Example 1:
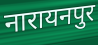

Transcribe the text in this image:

नारायनपुर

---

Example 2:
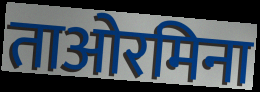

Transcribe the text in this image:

ताओरमिना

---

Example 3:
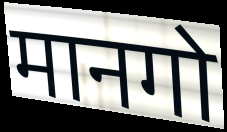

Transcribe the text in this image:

मानगो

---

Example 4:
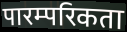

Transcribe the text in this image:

पारम्परिकता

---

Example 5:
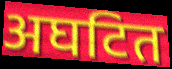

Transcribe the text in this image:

अघटित